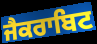
ਜੈਕਰਾਬਿਟ